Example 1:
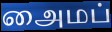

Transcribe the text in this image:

அைமப்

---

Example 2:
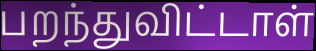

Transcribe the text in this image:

பறந்துவிட்டாள்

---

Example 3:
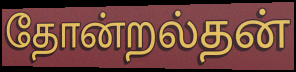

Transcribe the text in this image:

தோன்றல்தன்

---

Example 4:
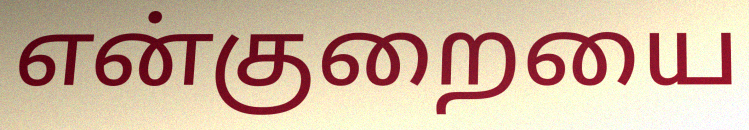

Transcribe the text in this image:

என்குறையை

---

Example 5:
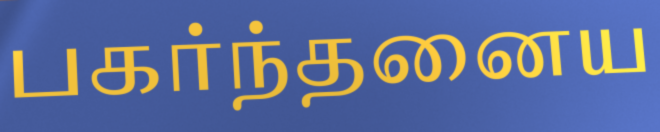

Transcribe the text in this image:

பகர்ந்தனைய